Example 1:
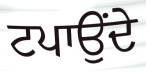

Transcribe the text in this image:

ਟਪਾਉਂਦੇ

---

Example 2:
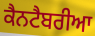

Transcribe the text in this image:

ਕੈਨਟੈਬਰੀਆ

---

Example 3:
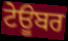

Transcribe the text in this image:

ਟੇਊਬਰ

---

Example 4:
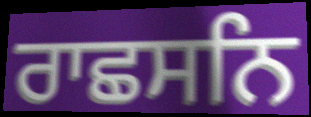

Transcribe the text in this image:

ਰਾਛਸਨਿ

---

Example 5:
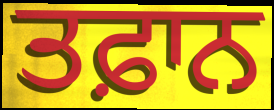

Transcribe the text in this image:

ਤਫ਼ਾਨ